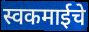
स्वकमाईचे